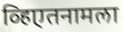
व्हिएतनामला